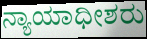
ನ್ಯಾಯಾಧೀಶರು